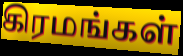
கிரமங்கள்